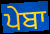
ਪੇਬਾ